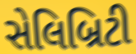
સેલિબ્રિટી